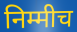
निम्मीच